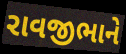
રાવજીભાને